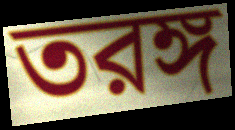
তরঙ্গ